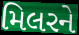
મિલરને